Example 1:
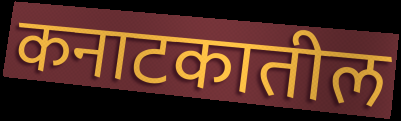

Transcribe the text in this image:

कनाटकातील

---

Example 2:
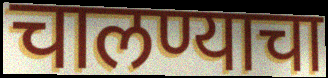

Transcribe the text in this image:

चालण्याचा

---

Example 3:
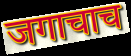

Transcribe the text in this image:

जगाचाच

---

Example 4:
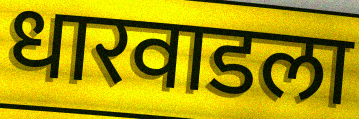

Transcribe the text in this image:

धारवाडला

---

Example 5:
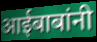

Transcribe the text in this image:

आईबाबांनी